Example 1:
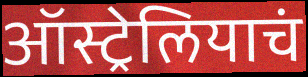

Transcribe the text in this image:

ऑस्ट्रेलियाचं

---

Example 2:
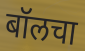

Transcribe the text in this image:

बॉलचा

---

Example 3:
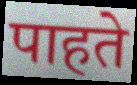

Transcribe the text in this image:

पाहते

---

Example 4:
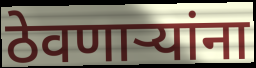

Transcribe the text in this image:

ठेवणार्‍यांना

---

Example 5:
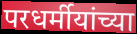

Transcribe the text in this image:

परधर्मीयांच्या